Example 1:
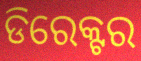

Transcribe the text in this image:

ଡିରେକ୍ଟର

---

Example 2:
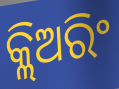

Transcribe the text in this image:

କ୍ଲିଅରିଂ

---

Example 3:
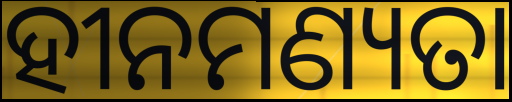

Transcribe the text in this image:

ହୀନମଣ୍ୟତା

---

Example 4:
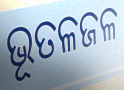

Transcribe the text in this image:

ଭୂତଳଜଳ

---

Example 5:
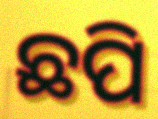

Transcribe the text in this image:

ଛପି